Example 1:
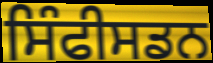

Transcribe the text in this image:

ਸਿੰਫੀਸਡਨ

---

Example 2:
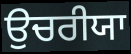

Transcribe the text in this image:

ਉਚਰੀਯਾ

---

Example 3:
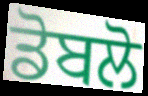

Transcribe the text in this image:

ਡੋਬਲੋ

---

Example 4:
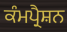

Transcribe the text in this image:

ਕੰਮਪ੍ਰੈਸ਼ਨ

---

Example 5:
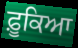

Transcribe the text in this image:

ਫ਼ੂਕਿਆ